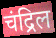
चंद्रिल